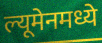
ल्यूमेनमध्ये